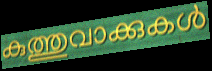
കുത്തുവാക്കുകൾ